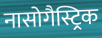
नासोगैस्ट्रिक